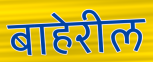
बाहेरील